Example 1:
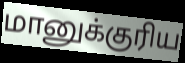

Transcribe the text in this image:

மானுக்குரிய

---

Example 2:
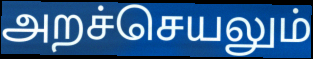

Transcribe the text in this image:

அறச்செயலும்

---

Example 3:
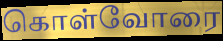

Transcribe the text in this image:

கொள்வோரை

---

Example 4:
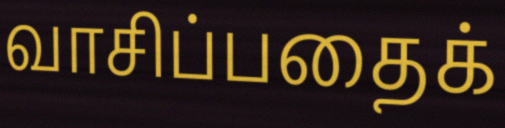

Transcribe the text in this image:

வாசிப்பதைக்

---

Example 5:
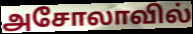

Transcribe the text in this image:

அசோலாவில்